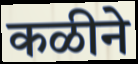
कळीने